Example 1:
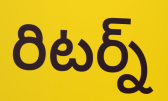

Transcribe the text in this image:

రిటర్న్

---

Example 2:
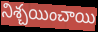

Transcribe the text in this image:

నిశ్చయించాయి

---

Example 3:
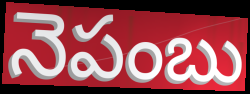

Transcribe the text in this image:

నెపంబు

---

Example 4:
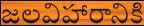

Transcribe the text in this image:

జలవిహారానికి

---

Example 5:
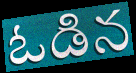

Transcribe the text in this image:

ఓడిన